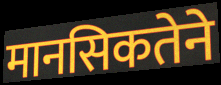
मानसिकतेने